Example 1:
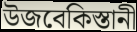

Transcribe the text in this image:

উজবেকিস্তানী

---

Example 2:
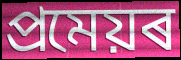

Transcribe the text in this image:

প্ৰমেয়ৰ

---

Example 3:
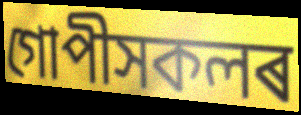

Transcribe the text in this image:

গোপীসকলৰ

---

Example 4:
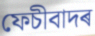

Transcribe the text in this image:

ফেচীবাদৰ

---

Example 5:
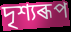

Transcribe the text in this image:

দৃশ্যৰূপ